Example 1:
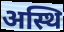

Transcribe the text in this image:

अस्थि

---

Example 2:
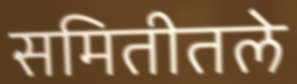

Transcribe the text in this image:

समितीतले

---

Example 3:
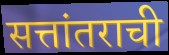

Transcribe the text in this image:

सत्तांतराची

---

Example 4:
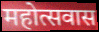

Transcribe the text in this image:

महोत्सवास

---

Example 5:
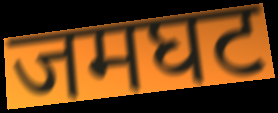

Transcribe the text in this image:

जमघट